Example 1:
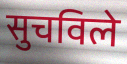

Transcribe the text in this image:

सुचविले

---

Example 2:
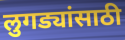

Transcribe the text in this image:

लुगड्यांसाठी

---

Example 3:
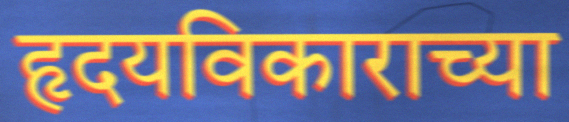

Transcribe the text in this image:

हृदयविकाराच्या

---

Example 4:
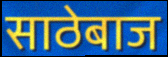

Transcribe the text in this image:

साठेबाज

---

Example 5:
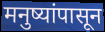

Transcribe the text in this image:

मनुष्यांपासून